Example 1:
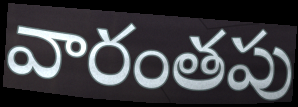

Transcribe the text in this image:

వారంతపు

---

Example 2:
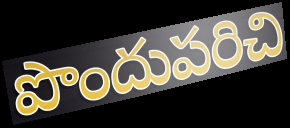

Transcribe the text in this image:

పొందుపరిచి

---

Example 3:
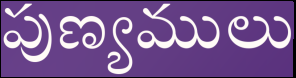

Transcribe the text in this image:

పుణ్యములు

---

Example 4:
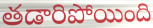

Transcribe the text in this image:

తడారిపోయింది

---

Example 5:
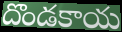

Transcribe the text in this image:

దొండకాయ